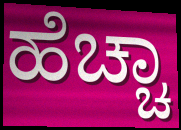
ಹೆಚ್ಚಾ